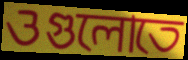
ওগুলোতে